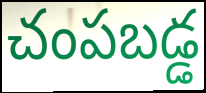
చంపబడ్డ